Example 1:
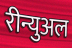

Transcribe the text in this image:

रीन्युअल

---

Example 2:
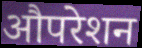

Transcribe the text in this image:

औपरेशन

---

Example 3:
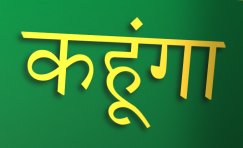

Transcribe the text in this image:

कहूंगा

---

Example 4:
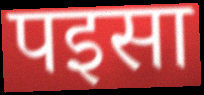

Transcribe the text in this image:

पइसा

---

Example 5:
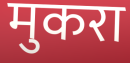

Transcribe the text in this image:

मुकरा